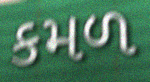
કમળ